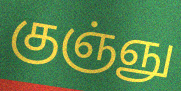
குஞ்ஞு